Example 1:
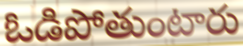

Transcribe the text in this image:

ఓడిపోతుంటారు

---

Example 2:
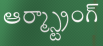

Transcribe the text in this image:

ఆర్మ్స్ట్రాంగ్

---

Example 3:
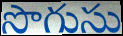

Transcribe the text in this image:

సొగుసు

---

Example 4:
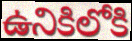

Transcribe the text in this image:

ఉనికిలోకి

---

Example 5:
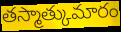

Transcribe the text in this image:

తస్మాత్కుమారం